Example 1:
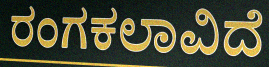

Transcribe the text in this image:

ರಂಗಕಲಾವಿದೆ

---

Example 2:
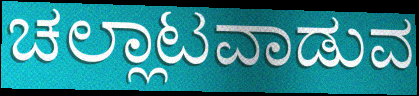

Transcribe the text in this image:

ಚಲ್ಲಾಟವಾಡುವ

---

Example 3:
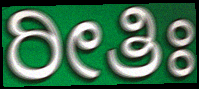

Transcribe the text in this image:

ರೀತಿಃ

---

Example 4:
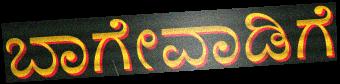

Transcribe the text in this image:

ಬಾಗೇವಾಡಿಗೆ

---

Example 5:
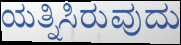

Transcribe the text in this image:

ಯತ್ನಿಸಿರುವುದು